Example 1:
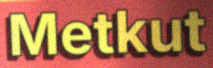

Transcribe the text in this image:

Metkut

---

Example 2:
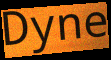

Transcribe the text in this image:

Dyne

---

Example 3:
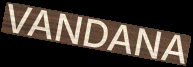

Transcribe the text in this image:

VANDANA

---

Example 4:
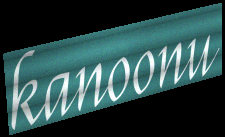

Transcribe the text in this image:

kanoonu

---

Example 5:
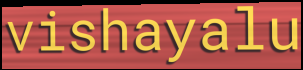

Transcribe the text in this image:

vishayalu